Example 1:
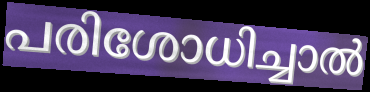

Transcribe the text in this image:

പരിശോധിച്ചാൽ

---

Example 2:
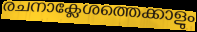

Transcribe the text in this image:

രചനാക്ലേശത്തെക്കാളും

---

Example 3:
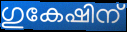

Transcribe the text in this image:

ഗുകേഷിന്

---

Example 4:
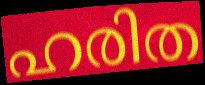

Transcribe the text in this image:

ഹരിത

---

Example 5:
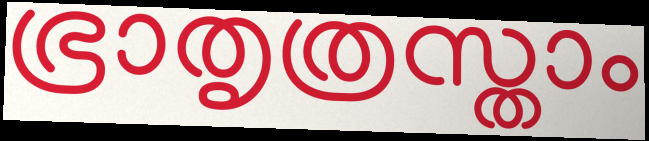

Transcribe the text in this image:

ഭ്രാതൃത്രസ്താം